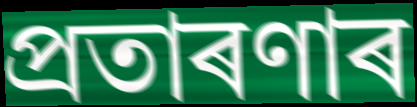
প্ৰতাৰণাৰ